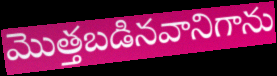
మొత్తబడినవానిగాను